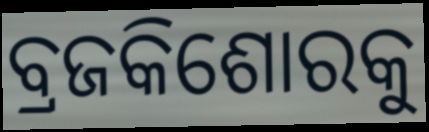
ବ୍ରଜକିଶୋରକୁ